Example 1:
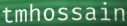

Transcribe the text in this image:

tmhossain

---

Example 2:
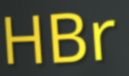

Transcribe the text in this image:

HBr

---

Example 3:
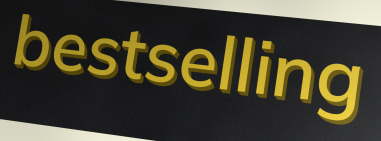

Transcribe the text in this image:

bestselling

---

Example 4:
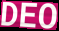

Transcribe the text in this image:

DEO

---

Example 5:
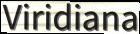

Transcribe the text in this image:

Viridiana